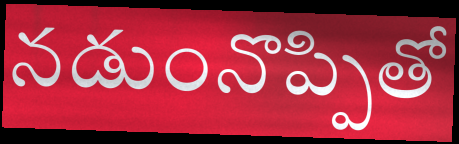
నడుంనొప్పితో